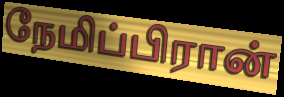
நேமிப்பிரான்